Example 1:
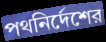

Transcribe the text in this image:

পথনির্দেশের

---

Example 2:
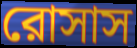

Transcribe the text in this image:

রোসাস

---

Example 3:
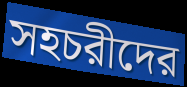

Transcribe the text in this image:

সহচরীদের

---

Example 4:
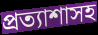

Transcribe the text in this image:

প্রত্যাশাসহ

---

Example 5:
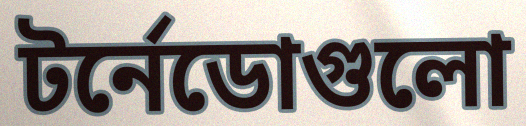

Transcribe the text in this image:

টর্নেডোগুলো